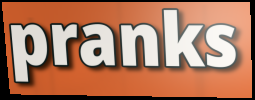
pranks